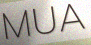
MUA